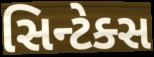
સિન્ટેક્સ